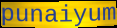
punaiyum